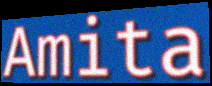
Amita